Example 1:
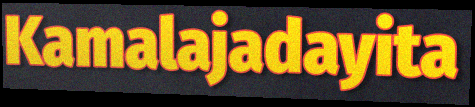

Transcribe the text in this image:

Kamalajadayita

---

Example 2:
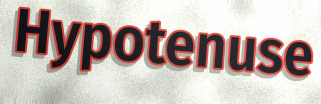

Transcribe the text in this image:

Hypotenuse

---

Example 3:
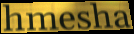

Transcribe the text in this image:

hmesha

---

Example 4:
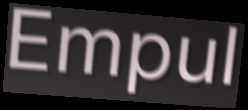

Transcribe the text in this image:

Empul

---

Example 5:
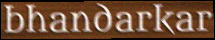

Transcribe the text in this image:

bhandarkar